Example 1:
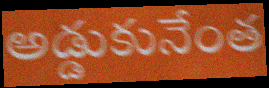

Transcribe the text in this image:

అడ్డుకునేంత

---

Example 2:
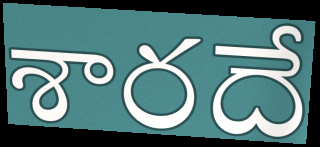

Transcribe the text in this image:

శారదే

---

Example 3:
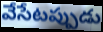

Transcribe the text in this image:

వేసేటప్పుడు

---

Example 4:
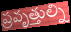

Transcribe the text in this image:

ప్రవృత్తుల్ని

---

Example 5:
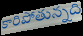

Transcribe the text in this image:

కారిపోతున్నది